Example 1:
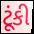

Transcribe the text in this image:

ટૂંકી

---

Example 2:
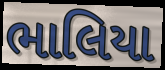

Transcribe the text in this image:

ભાલિયા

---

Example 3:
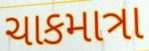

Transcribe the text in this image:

ચાકમાત્રા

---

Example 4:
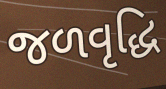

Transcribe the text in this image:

જળવૃદ્ધિ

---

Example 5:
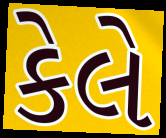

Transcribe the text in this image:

કેલે